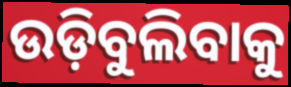
ଉଡ଼ିବୁଲିବାକୁ